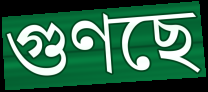
গুণছে